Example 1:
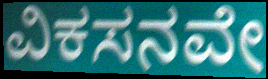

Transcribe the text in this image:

ವಿಕಸನವೇ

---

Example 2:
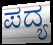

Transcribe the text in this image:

ಪದ್ಯ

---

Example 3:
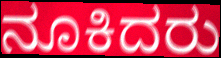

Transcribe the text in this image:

ನೂಕಿದರು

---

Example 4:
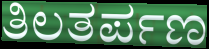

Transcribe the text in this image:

ತಿಲತರ್ಪಣ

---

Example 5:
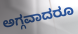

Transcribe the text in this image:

ಅಗ್ಗವಾದರೂ